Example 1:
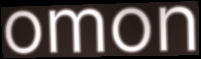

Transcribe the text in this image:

omon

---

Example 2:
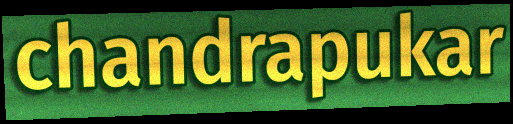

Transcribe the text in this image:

chandrapukar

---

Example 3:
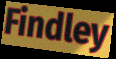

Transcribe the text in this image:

Findley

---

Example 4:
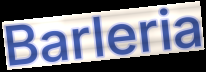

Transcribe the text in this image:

Barleria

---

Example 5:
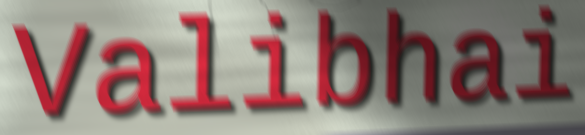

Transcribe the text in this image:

Valibhai